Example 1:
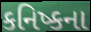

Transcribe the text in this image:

કનિષ્કના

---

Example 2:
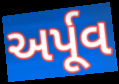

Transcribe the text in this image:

અર્પૂવ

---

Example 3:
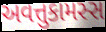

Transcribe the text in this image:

અવત્તુકામસ્સ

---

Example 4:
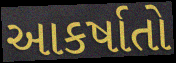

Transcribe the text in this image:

આકર્ષાતો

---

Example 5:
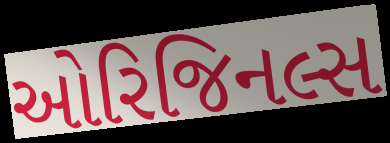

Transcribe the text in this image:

ઓરિજિનલ્સ